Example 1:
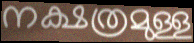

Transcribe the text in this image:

നക്ഷത്രമുള്ള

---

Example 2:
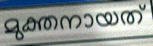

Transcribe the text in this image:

മുക്തനായത്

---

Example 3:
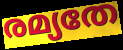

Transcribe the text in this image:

രമ്യതേ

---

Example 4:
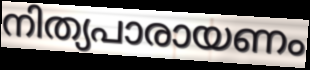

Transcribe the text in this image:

നിത്യപാരായണം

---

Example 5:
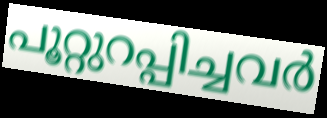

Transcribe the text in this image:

പൂറ്റുറപ്പിച്ചവർ